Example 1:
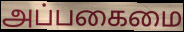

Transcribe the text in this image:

அப்பகைமை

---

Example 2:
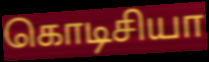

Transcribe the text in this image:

கொடிசியா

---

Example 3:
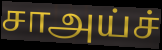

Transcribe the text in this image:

சாஅய்ச்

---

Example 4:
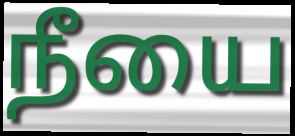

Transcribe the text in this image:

நீயை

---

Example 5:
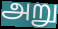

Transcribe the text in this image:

அறு